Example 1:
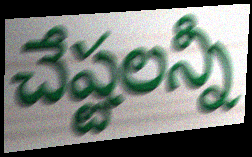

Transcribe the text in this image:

చేష్టలన్నీ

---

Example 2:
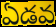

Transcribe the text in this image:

ఏడవ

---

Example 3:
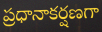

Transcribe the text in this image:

ప్రధానాకర్షణగా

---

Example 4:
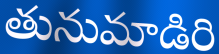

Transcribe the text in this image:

తునుమాడిరి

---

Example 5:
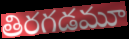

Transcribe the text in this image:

తిరగడమూ